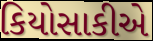
કિયોસાકીએ